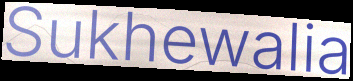
Sukhewalia